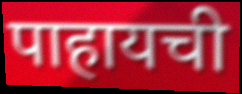
पाहायची